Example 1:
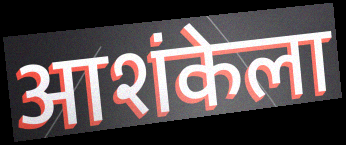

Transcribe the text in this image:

आशंकेला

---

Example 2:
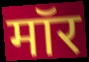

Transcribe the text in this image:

मॉर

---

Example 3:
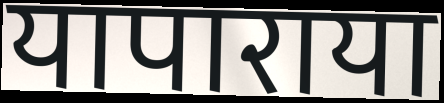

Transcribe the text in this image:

यापाराया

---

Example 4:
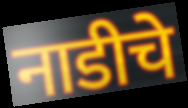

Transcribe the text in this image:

नाडीचे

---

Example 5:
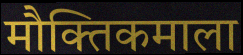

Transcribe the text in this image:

मौक्तिकमाला